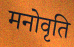
मनोवृति